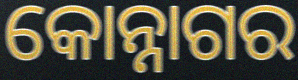
କୋନ୍ନାଗର